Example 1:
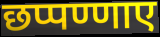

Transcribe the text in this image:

छप्पण्णाए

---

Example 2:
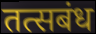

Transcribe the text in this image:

तत्सबंध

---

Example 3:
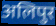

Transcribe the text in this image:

अलिपुर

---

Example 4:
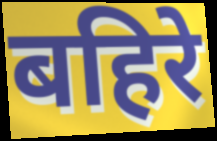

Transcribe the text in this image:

बहिरे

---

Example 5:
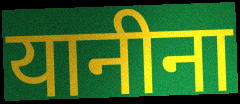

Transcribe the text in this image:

यानीना